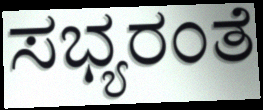
ಸಭ್ಯರಂತೆ